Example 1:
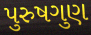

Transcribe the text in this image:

પુરુષગુણ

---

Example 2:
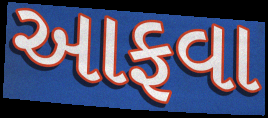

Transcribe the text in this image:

આફવા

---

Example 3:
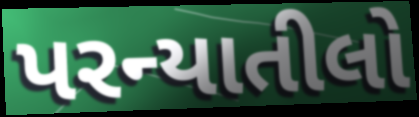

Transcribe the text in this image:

પરન્યાતીલો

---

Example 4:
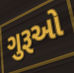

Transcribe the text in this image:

ગુરૂઓ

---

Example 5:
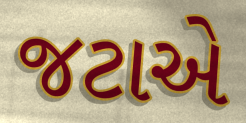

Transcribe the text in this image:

જટાએ